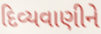
દિવ્યવાણીને